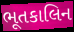
ભૂતકાલિન